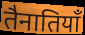
तैनातियाँ